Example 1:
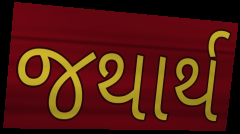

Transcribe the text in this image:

જથાર્થ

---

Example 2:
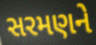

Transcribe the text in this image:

સરમણને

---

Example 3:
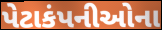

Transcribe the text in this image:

પેટાકંપનીઓના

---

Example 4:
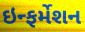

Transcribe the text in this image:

ઇન્ફર્મેશન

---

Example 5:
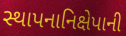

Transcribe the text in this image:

સ્થાપનાનિક્ષેપાની